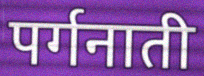
पर्गनाती